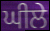
ਘੀਲੇ